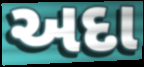
અદા